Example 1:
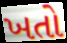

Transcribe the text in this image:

ખતો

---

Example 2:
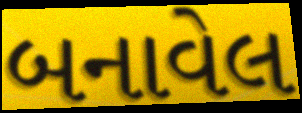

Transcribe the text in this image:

બનાવેલ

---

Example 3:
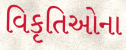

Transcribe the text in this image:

વિકૃતિઓના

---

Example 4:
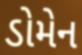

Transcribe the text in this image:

ડોમેન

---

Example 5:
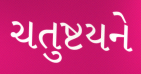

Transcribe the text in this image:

ચતુષ્ટયને